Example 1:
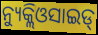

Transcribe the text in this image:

ନ୍ୟୁକ୍ଲିଓସାଇଡ୍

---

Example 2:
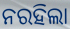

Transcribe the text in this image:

ନରହିଲା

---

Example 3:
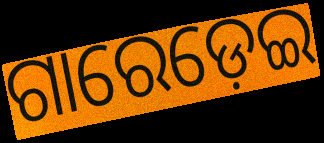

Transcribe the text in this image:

ଗାରେଡ଼େଇ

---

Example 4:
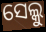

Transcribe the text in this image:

ସେଲ୍କୁ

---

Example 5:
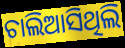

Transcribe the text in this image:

ଚାଲିଆସିଥିଲି